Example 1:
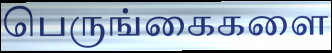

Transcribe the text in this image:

பெருங்கைகளை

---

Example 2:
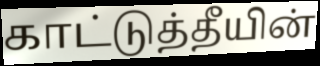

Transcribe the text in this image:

காட்டுத்தீயின்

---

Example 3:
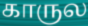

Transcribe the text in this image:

காருல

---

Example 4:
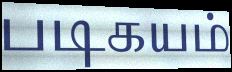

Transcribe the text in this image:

படிகயம்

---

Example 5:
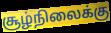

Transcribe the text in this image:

சூழ்நிலைக்கு